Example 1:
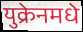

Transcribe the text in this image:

युक्रेनमधे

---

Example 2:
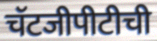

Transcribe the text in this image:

चॅटजीपीटीची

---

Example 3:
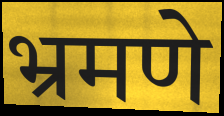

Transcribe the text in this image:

भ्रमणे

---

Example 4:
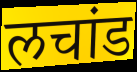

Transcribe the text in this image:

लचांड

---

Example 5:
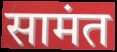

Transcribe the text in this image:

सामंत